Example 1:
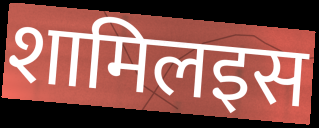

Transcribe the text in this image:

शामिलइस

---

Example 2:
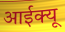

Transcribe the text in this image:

आईक्‍यू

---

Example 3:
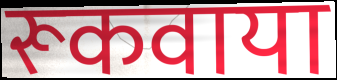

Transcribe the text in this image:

रूकवाया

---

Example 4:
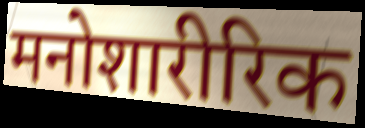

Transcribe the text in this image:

मनोशारीरिक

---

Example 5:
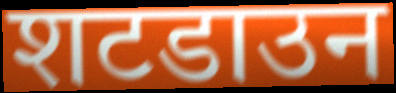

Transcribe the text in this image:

शटडाउन